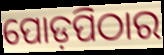
ପୋଡ଼ପିଠାର